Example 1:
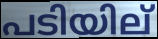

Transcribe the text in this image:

പടിയില്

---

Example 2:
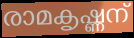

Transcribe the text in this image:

രാമകൃഷ്ണന്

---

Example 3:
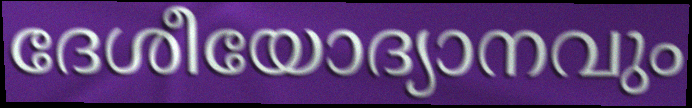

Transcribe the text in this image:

ദേശീയോദ്യാനവും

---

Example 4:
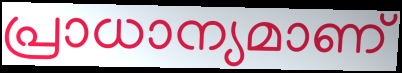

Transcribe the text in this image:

പ്രാധാന്യമാണ്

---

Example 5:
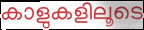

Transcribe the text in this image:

കാളുകളിലൂടെ